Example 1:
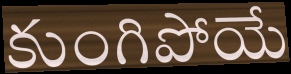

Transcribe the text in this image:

కుంగిపోయే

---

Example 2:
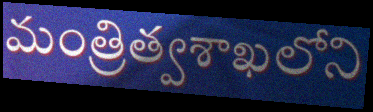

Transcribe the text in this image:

మంత్రిత్వశాఖలోని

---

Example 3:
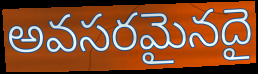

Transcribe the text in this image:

అవసరమైనదై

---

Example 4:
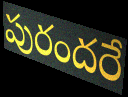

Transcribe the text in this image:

పురందరే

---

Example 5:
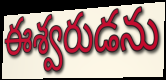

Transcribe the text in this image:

ఈశ్వరుడను